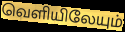
வெளியிலேயும்